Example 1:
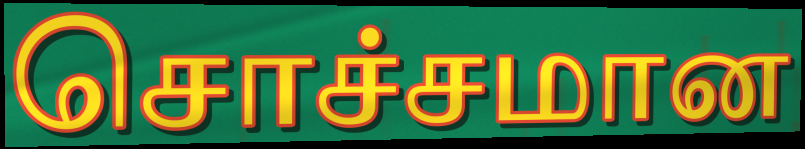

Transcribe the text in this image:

சொச்சமான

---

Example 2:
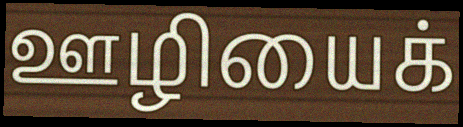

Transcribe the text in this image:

ஊழியைக்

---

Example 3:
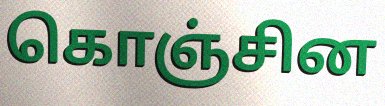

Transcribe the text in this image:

கொஞ்சின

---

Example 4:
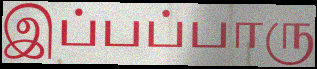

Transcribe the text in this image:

இப்பப்பாரு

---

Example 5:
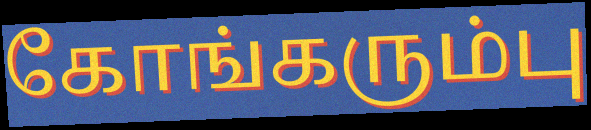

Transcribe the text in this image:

கோங்கரும்பு